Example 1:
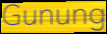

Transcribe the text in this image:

Gunung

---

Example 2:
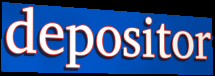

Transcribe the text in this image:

depositor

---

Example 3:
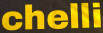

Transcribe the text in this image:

chelli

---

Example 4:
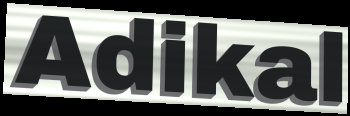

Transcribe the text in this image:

Adikal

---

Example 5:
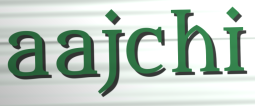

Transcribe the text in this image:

aajchi